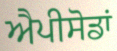
ਐਪੀਸੋਡਾਂ